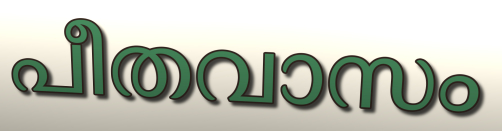
പീതവാസം